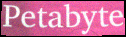
Petabyte